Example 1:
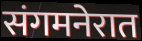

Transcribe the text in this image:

संगमनेरात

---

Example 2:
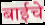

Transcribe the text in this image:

बाईचे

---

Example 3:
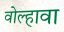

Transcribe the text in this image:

वोल्हावा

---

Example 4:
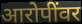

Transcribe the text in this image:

आरोपींवर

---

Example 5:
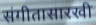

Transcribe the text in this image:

संगीतासारखी